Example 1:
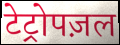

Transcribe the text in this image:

टेट्रोपज़ल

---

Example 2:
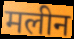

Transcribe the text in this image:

मलीन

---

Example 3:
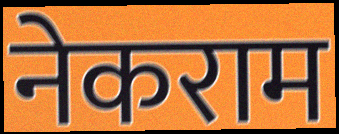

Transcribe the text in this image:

नेकराम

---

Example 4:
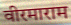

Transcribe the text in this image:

वीरमाराम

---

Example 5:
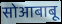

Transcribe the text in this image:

सोआबाबू